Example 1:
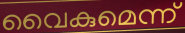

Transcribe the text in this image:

വൈകുമെന്ന്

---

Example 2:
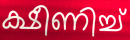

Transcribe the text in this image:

ക്ഷീണിച്ച്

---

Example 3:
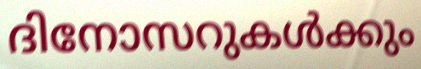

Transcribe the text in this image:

ദിനോസറുകൾക്കും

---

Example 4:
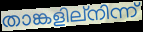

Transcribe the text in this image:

താങ്കളില്നിന്ന്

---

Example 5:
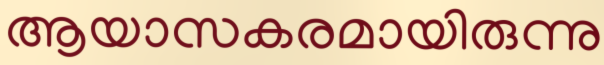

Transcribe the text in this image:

ആയാസകരമായിരുന്നു